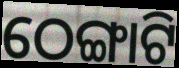
ଠେଙ୍ଗାଟି